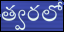
త్వరలో